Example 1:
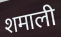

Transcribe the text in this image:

शमाली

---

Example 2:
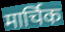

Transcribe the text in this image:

मार्चिक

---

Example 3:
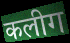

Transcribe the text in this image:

कलीग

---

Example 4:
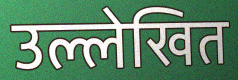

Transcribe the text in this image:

उल्लेखित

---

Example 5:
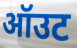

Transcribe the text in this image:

ऑउट